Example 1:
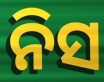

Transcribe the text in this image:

ନିସ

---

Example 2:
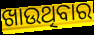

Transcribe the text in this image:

ଖାଉଥିବାର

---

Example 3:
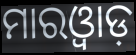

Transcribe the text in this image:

ମାରଓ୍ୱାଡ଼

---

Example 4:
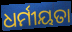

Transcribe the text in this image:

ଧର୍ମୀୟତା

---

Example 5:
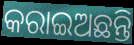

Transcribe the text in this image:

କରାଇଅଛନ୍ତି